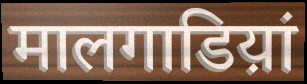
मालगाडिय़ां